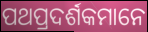
ପଥପ୍ରଦର୍ଶକମାନେ